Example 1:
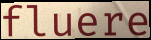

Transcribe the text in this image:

fluere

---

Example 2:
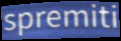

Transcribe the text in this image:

spremiti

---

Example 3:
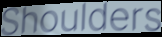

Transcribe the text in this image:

Shoulders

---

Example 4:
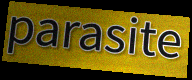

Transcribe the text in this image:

parasite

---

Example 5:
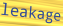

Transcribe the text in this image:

leakage